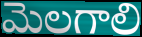
మెలగాలి